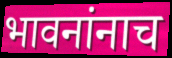
भावनांनाच